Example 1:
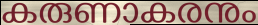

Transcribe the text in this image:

കരുണാകരനും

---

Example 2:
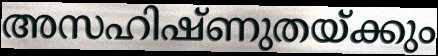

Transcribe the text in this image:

അസഹിഷ്ണുതയ്ക്കും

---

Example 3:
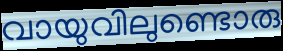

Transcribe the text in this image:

വായുവിലുണ്ടൊരു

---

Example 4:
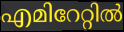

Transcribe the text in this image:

എമിറേറ്റിൽ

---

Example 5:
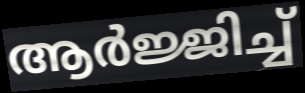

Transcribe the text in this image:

ആർജ്ജിച്ച്